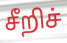
சீறிச்